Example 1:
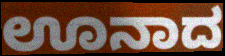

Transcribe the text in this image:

ಊನಾದ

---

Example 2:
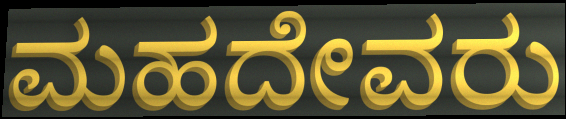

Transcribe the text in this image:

ಮಹದೇವರು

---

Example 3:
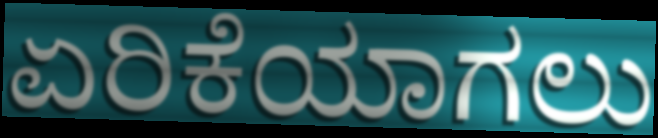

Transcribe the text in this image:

ಏರಿಕೆಯಾಗಲು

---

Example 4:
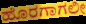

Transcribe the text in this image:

ಹೊರಗಾಗಲೀ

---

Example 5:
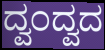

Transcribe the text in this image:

ದ್ವಂದ್ವದ